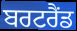
ਬਰਟਰੈਂਡ